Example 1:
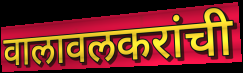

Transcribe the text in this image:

वालावलकरांची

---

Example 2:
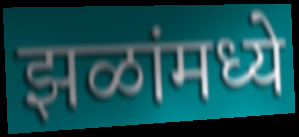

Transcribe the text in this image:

झळांमध्ये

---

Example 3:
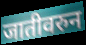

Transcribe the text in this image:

जातीवरुन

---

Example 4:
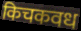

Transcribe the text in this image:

किचकवध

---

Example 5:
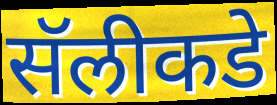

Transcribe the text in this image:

सॅलीकडे